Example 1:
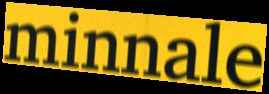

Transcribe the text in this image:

minnale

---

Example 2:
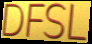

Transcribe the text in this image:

DFSL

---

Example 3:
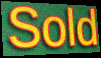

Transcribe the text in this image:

Sold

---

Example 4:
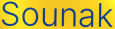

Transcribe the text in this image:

Sounak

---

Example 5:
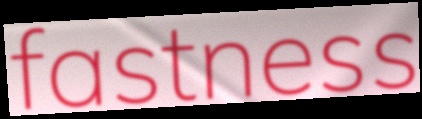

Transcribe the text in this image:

fastness